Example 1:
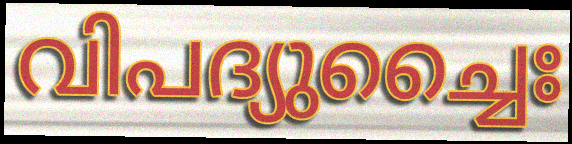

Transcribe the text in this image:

വിപദ്യുച്ചൈഃ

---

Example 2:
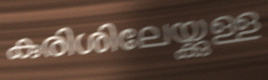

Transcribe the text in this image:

കുരിശിലേയ്ക്കുള്ള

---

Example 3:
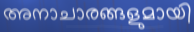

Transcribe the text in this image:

അനാചാരങ്ങളുമായി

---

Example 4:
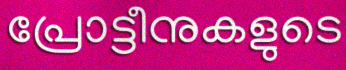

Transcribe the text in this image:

പ്രോട്ടീനുകളുടെ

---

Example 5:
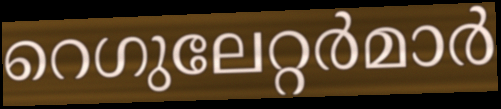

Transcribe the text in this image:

റെഗുലേറ്റർമാർ